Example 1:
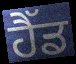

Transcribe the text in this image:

ਹੈੱਡ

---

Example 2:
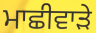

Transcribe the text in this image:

ਮਾਛੀਵਾੜੇ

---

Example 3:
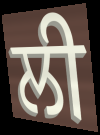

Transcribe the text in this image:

ਲੀ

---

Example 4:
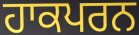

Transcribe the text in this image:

ਹਾਕਪਰਨ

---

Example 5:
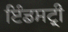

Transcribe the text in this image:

ਇੰਡਸਟ੍ਰੀ